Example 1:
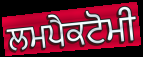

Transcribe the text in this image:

ਲਮਪੈਕਟੋਮੀ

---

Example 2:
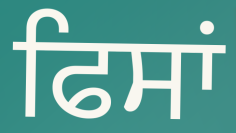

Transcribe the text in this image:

ਫਿਸਾਂ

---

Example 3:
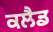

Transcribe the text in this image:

ਕਲੈਡ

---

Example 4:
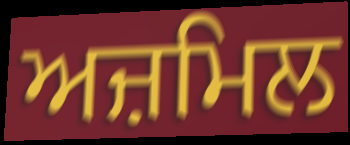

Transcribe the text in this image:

ਅਜ਼ਮਿਲ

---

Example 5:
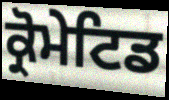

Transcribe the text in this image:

ਕ੍ਰੋਮੇਟਿਡ